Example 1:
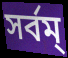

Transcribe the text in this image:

সর্বম্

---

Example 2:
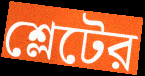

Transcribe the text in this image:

শ্লেটের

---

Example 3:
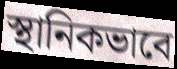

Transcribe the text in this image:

স্থানিকভাবে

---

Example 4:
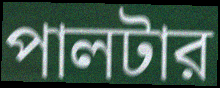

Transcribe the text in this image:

পালটার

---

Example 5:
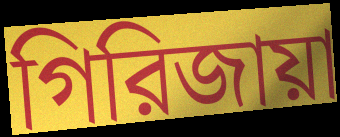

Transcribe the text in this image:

গিরিজায়া